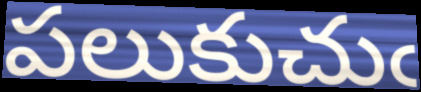
పలుకుచుఁ